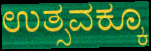
ಉತ್ಸವಕ್ಕೂ